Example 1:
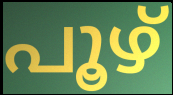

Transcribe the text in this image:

പൂഴ്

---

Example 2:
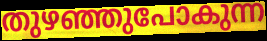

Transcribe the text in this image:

തുഴഞ്ഞുപോകുന്ന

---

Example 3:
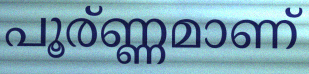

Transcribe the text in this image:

പൂര്ണ്ണമാണ്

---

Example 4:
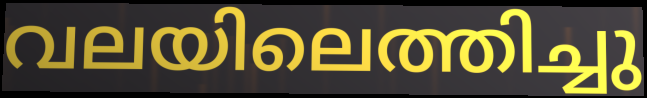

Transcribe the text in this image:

വലയിലെത്തിച്ചു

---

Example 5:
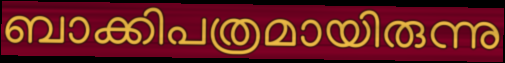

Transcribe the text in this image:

ബാക്കിപത്രമായിരുന്നു